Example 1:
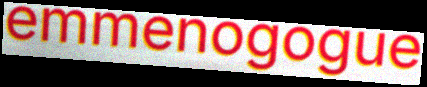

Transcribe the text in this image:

emmenogogue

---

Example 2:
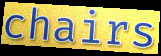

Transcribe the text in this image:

chairs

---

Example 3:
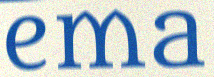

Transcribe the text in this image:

ema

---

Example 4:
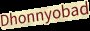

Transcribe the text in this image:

Dhonnyobad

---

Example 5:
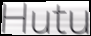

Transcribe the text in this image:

Hutu